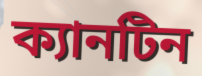
ক্যানটিন